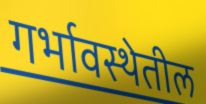
गर्भावस्थेतील